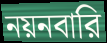
নয়নবারি